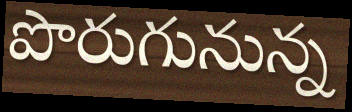
పొరుగునున్న